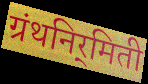
ग्रंथनिर्मिती